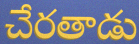
చేరతాడు